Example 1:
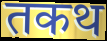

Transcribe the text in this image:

तकथ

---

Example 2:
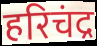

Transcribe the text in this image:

हरिचंद्र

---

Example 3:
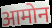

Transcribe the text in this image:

आमोन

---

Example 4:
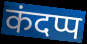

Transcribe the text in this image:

कंदप्प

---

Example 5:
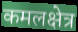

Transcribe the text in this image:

कमलक्षेत्र